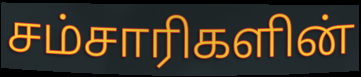
சம்சாரிகளின்